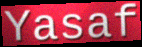
Yasaf